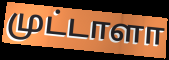
முட்டாளா